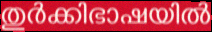
തുർക്കിഭാഷയിൽ